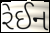
રેઈન